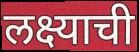
लक्ष्याची